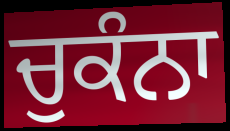
ਚੁਕੰਨਾ